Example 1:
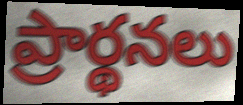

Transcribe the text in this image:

ప్రార్థనలు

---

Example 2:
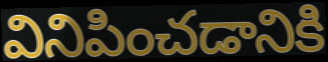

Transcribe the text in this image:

వినిపించడానికి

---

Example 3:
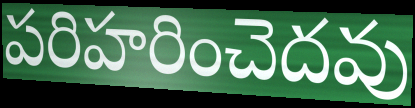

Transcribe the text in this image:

పరిహరించెదవు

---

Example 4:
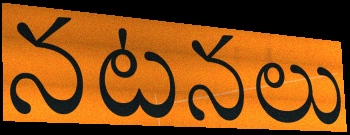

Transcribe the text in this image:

నటనలు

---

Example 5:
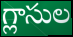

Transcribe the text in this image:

గ్లాసుల